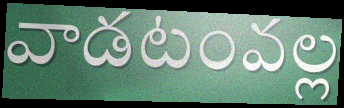
వాడటంవల్ల